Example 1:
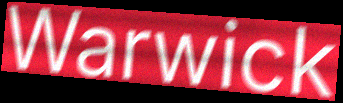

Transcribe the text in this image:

Warwick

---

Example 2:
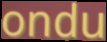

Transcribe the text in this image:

ondu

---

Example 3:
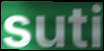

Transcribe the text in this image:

suti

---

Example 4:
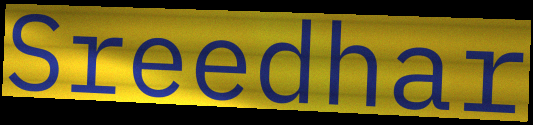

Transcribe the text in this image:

Sreedhar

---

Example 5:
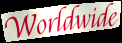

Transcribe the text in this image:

Worldwide